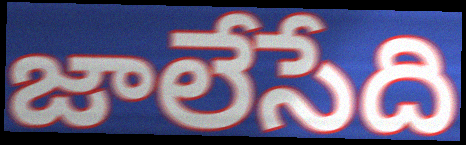
జాలేసేది